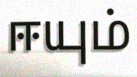
ஈயும்